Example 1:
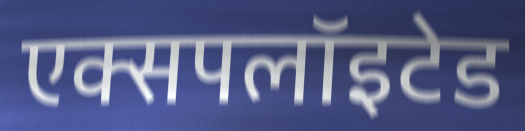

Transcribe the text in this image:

एक्सपलॉइटेड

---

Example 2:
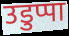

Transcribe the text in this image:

उडुप्पा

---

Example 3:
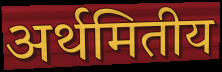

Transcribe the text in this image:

अर्थमितीय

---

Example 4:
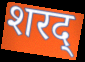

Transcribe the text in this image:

शरद्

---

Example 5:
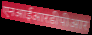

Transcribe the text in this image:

एनआईआरडीपीआर